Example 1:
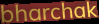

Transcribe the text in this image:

bharchak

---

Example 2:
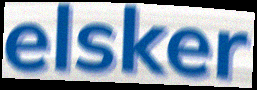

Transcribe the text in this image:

elsker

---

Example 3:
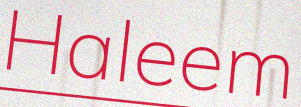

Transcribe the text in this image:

Haleem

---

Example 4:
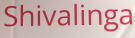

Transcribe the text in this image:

Shivalinga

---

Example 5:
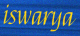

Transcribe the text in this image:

iswarya